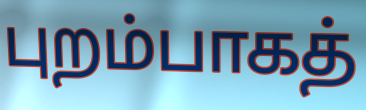
புறம்பாகத்